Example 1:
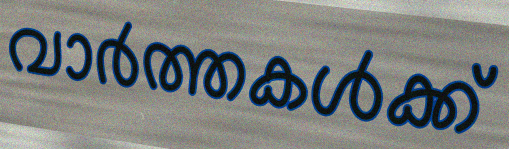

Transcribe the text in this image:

വാർത്തകൾക്ക്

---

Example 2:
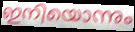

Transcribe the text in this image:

ഇനിയൊന്നും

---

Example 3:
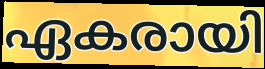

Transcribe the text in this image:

ഏകരായി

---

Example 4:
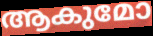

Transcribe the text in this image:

ആകുമോ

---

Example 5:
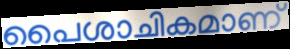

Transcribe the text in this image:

പൈശാചികമാണ്